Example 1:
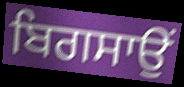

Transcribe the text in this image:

ਬਿਗਸਾਉਂ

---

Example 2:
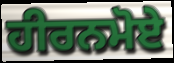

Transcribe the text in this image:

ਹੀਰਨਮੋਏ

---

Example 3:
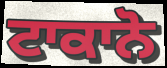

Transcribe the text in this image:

ਟਾਕਾਨੋ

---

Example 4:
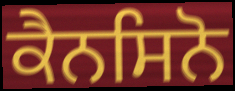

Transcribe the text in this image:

ਕੈਨਸਿਨੋ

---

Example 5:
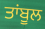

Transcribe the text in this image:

ਤਾਂਬੂਲ